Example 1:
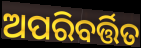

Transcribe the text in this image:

ଅପରିବର୍ତ୍ତିତ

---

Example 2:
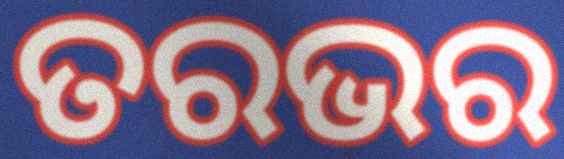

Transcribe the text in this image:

ତରଭର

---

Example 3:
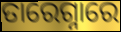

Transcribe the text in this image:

ତାରେଗ୍ନାରେ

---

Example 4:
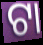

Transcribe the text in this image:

ଟା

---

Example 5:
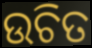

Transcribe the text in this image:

ଉଚିତ